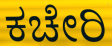
ಕಚೇರಿ